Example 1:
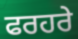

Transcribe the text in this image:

ਫਰਹਰੇ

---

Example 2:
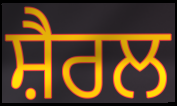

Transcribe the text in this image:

ਸ਼ੈਰਲ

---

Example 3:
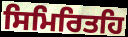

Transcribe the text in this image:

ਸਿਮਿਰਿਤਹਿ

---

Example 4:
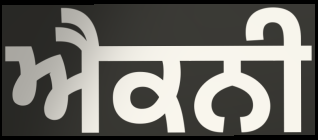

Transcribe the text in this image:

ਐਕਨੀ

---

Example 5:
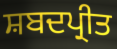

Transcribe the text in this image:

ਸ਼ਬਦਪ੍ਰੀਤ